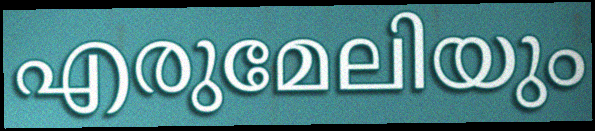
എരുമേലിയും